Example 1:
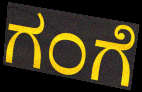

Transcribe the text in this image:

ಗಂಗೆ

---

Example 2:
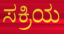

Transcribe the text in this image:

ಸಕ್ರಿಯ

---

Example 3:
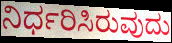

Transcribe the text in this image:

ನಿರ್ಧರಿಸಿರುವುದು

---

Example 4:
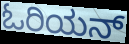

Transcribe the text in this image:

ಓರಿಯನ್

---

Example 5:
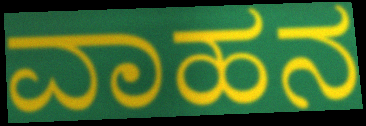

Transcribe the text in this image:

ವಾಹನ